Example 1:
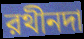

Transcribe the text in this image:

রথীনদা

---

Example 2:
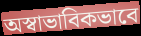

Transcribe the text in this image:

অস্বাভাবিকভাবে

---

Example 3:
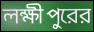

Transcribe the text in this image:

লক্ষীপুরের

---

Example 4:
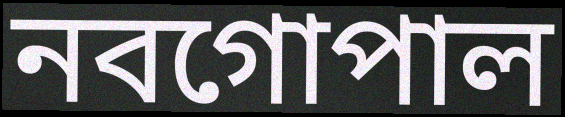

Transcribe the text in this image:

নবগোপাল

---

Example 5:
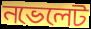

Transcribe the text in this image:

নভেলেট